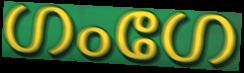
ഗംഗേ